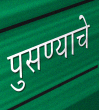
पुसण्याचे